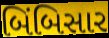
બિંબિસાર